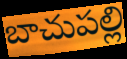
బాచుపల్లి